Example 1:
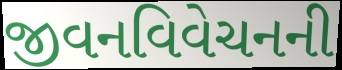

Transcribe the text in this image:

જીવનવિવેચનની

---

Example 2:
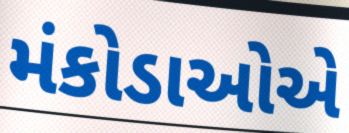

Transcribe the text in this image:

મંકોડાઓએ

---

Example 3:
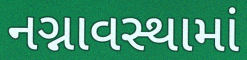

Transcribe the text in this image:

નગ્નાવસ્થામાં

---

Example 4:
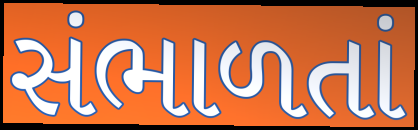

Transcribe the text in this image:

સંભાળતાં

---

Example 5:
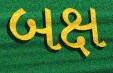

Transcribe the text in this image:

બક્ષ